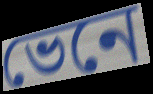
ভেনে